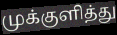
முக்குளித்து